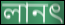
লানৎ